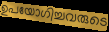
ഉപയോഗിച്ചവരുടെ